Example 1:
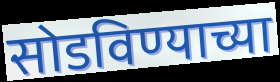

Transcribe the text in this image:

सोडविण्याच्या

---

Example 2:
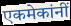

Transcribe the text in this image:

एकमेकांनीं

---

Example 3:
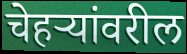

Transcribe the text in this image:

चेहऱ्यांवरील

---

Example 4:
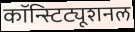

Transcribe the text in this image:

कॉन्स्टिट्यूशनल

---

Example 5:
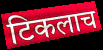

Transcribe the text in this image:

टिकलाच